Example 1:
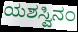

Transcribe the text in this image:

ಯಶಸ್ವಿನಂ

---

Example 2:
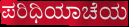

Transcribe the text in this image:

ಪರಿಧಿಯಾಚೆಯ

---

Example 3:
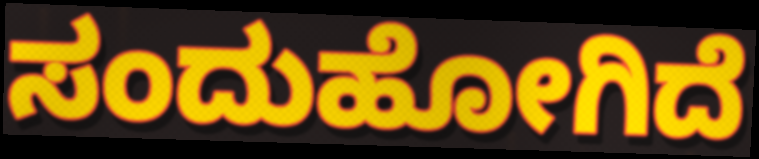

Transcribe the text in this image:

ಸಂದುಹೋಗಿದೆ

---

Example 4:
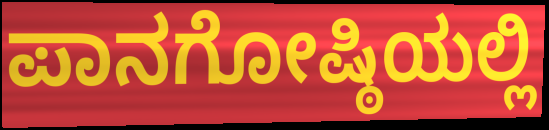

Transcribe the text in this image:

ಪಾನಗೋಷ್ಠಿಯಲ್ಲಿ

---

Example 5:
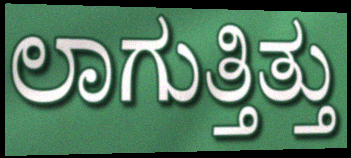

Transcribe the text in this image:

ಲಾಗುತ್ತಿತ್ತು